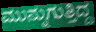
ಮುನ್ನುಗುತ್ತಿದ್ದ